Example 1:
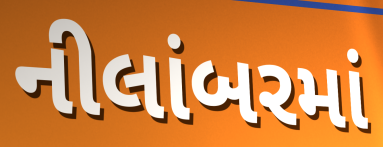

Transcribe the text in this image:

નીલાંબરમાં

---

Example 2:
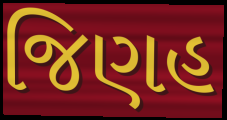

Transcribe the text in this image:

જિણહ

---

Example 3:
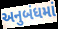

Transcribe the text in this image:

અનુબંધમાં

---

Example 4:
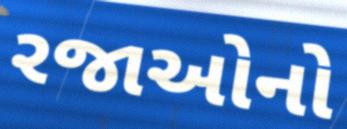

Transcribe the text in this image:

રજાઓનો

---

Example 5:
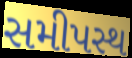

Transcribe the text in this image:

સમીપસ્થ